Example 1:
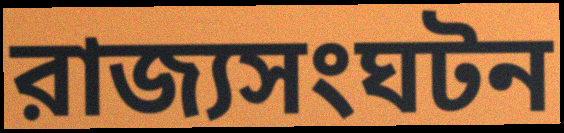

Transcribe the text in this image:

রাজ্যসংঘটন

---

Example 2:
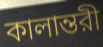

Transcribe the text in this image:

কালান্তরী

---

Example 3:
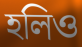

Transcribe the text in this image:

হলিও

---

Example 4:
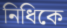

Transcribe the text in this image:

নিধিকে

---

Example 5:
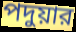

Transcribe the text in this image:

পদুয়ার